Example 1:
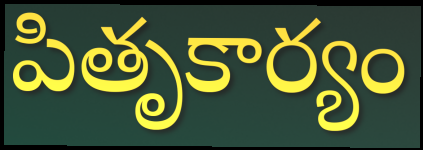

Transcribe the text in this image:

పితృకార్యం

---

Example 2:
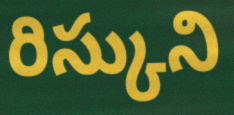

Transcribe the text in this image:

రిస్కుని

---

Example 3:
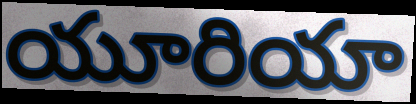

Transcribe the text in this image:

యూరియా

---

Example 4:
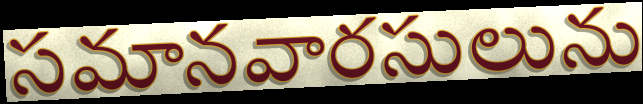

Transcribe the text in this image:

సమానవారసులును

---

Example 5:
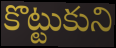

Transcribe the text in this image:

కొట్టుకుని